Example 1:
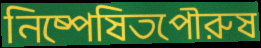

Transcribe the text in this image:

নিষ্পেষিতপৌরুষ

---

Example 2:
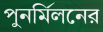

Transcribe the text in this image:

পুনর্মিলনের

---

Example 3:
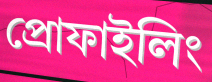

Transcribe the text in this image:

প্রোফাইলিং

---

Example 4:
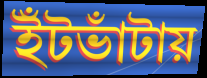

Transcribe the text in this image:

ইঁটভাঁটায়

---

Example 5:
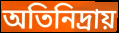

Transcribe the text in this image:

অতিনিদ্রায়